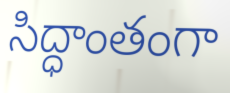
సిద్ధాంతంగా